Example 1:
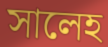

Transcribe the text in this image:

সালেহ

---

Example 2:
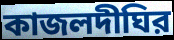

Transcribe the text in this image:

কাজলদীঘির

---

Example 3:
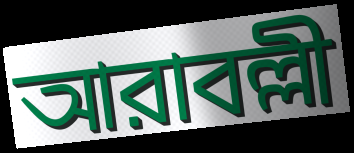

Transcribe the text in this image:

আরাবল্লী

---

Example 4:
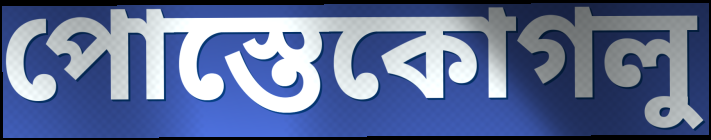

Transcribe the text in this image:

পোস্তেকোগলু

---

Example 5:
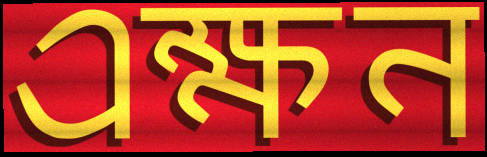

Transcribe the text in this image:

এক্ষন